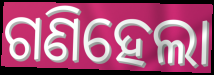
ଗଣିହେଲା